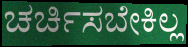
ಚರ್ಚಿಸಬೇಕಿಲ್ಲ